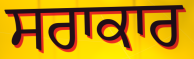
ਸਰਾਕਾਰ